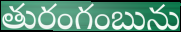
తురంగంబును